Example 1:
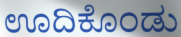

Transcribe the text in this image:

ಊದಿಕೊಂಡು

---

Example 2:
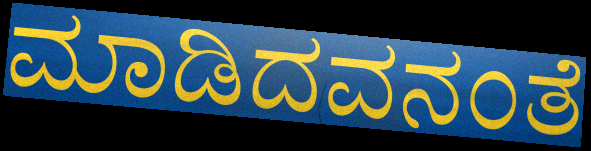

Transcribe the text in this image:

ಮಾಡಿದವನಂತೆ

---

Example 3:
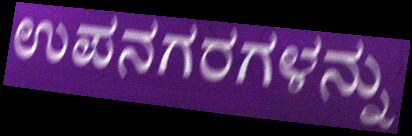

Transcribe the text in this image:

ಉಪನಗರಗಳನ್ನು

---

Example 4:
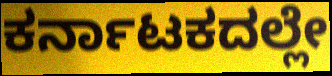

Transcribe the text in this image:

ಕರ್ನಾಟಕದಲ್ಲೇ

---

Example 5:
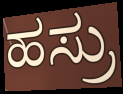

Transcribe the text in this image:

ಹಸ್ರು